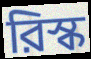
রিস্ক